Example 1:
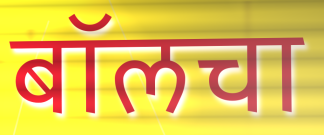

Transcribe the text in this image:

बॉलचा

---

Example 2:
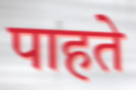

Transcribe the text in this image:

पाहते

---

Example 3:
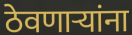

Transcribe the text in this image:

ठेवणार्‍यांना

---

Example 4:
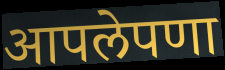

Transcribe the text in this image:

आपलेपणा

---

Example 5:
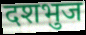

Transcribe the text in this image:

दशभुज